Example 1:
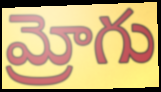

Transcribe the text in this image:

మ్రోగు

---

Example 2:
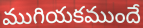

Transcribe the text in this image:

ముగియకముందే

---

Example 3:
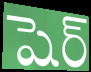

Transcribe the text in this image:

షెర్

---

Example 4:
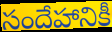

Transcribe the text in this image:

సందేహానికీ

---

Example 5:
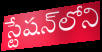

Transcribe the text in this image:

స్టేషన్‌లోని